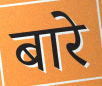
बारे